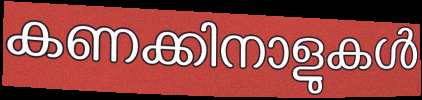
കണക്കിനാളുകൾ